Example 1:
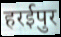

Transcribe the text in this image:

हरईपुर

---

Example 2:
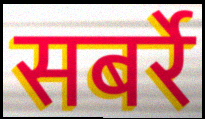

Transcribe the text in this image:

सबर्रे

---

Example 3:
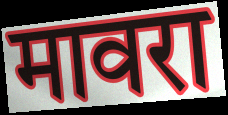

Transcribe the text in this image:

मावरा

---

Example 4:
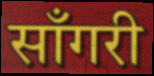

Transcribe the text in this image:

साँगरी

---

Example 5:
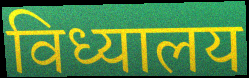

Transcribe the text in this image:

विध्यालय